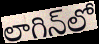
లాగిన్‌లో